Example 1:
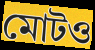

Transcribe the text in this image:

মোটও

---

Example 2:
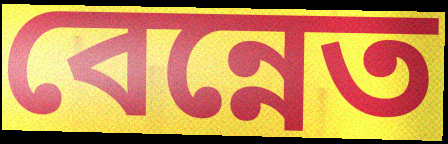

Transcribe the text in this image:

বেন্নেত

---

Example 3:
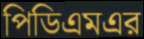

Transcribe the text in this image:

পিডিএমএর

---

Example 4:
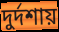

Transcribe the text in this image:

দুর্দশায়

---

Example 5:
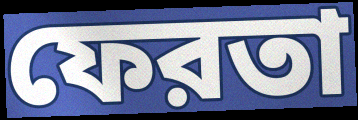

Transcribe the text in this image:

ফেরতা